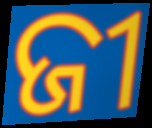
ଜୀ